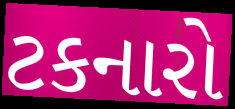
ટકનારો